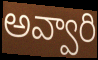
అవ్వారి